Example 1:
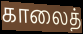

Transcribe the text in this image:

காலைத்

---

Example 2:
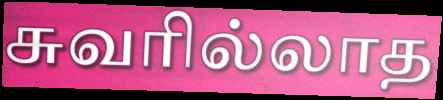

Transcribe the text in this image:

சுவரில்லாத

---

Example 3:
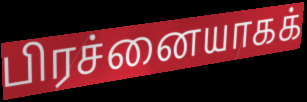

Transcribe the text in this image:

பிரச்னையாகக்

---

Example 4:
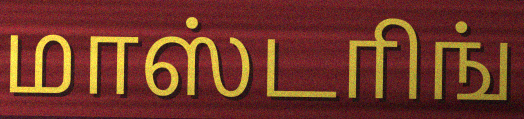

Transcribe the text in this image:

மாஸ்டரிங்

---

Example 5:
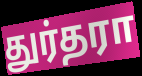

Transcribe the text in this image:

துர்தரா